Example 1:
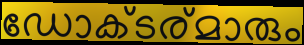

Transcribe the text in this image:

ഡോക്ടര്മാരും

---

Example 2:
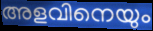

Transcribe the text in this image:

അളവിനെയും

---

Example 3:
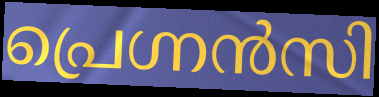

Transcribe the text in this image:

പ്രെഗ്നൻസി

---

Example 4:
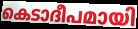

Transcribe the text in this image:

കെടാദീപമായി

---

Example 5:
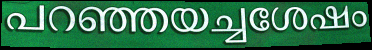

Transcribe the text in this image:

പറഞ്ഞയച്ചശേഷം